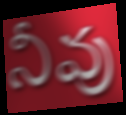
నీవు